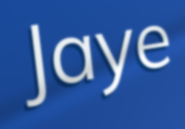
Jaye